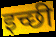
इच्छी